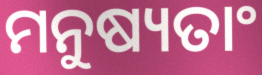
ମନୁଷ୍ୟତାଂ